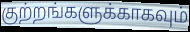
குற்றங்களுக்காகவும்